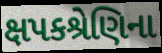
ક્ષપકશ્રેણિના